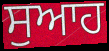
ਸੁਆਹ